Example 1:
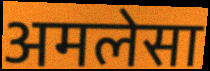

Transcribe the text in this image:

अमलेसा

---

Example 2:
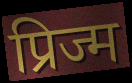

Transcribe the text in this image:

प्रिज्म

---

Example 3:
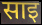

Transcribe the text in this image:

साइ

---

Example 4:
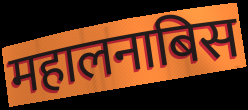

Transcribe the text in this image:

महालनाबिस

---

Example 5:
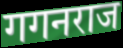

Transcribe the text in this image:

गगनराज